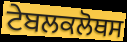
ਟੇਬਲਕਲੋਥਸ